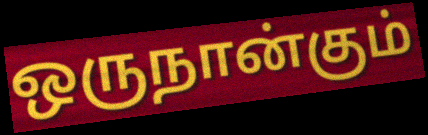
ஒருநான்கும்